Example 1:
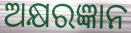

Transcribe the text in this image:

ଅକ୍ଷରଜ୍ଞାନ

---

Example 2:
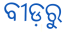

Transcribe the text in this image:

ବୀଡ଼ରୁ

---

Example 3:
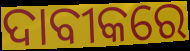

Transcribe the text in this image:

ଦାବୀକରେ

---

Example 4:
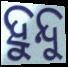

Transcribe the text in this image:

ହୁନ୍ଦୁ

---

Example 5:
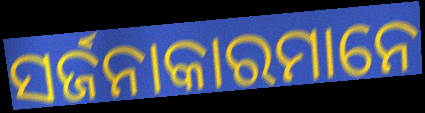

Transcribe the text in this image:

ସର୍ଜନାକାରମାନେ